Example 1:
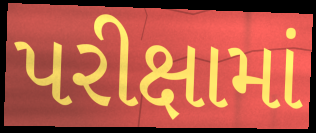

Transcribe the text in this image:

પરીક્ષામાં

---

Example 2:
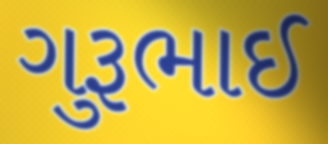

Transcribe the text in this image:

ગુરૂભાઈ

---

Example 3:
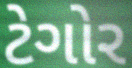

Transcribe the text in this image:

ટેગોર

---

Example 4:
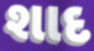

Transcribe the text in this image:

શાદ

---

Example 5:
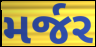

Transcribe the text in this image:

મર્જર